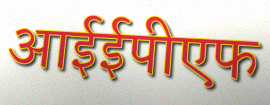
आईईपीएफ